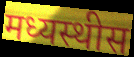
मध्यस्थीस